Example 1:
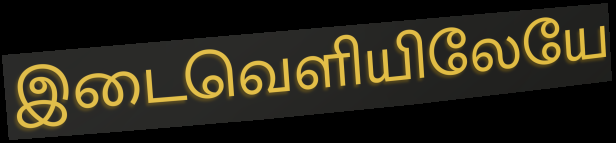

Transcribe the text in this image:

இடைவெளியிலேயே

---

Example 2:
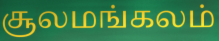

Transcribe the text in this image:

சூலமங்கலம்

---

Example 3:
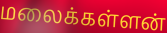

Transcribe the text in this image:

மலைக்கள்ளன்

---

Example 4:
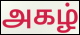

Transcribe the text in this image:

அகழ்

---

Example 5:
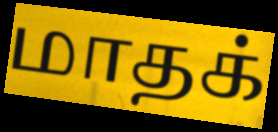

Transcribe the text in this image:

மாதக்